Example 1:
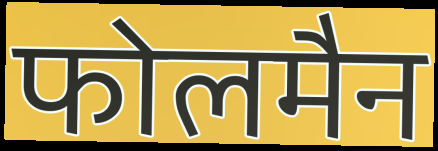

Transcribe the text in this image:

फोलमैन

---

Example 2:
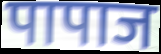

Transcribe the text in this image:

पापाज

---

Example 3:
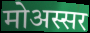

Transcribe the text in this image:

मोअस्सर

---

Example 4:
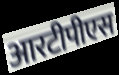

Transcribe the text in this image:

आरटीपीएस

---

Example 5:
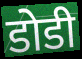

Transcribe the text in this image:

डोडी